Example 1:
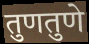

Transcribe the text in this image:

तुणतुणे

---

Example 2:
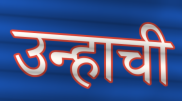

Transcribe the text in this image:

उन्हाची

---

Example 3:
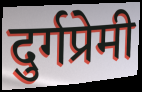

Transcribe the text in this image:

दुर्गप्रेमी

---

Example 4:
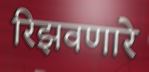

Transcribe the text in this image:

रिझवणारे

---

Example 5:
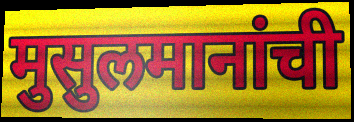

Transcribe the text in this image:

मुसुलमानांची